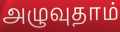
அழுவுதாம்